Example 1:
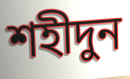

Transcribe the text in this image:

শহীদুন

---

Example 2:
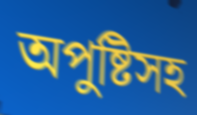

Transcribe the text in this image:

অপুষ্টিসহ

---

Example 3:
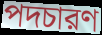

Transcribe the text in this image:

পদচারণ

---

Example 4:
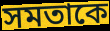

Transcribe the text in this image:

সমতাকে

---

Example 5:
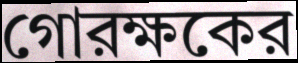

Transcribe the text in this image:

গোরক্ষকের